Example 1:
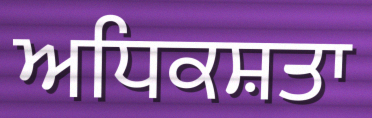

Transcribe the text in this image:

ਅਧਿਕਸ਼ਤਾ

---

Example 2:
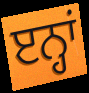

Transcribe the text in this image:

ੲਨ੍ਹਾਂ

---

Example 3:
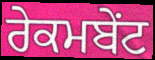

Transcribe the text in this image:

ਰੇਕਮਬੇਂਟ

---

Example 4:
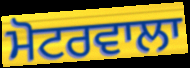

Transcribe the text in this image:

ਮੋਟਰਵਾਲਾ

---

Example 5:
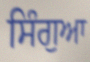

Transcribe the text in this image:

ਸਿੰਗੁਆ